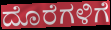
ದೊರೆಗಳಿಗೆ